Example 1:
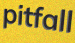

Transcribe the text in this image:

pitfall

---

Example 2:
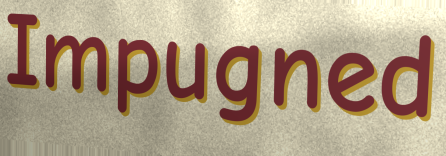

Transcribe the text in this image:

Impugned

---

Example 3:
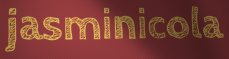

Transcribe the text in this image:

jasminicola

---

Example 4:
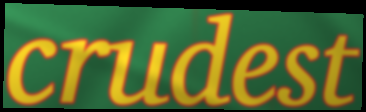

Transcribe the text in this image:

crudest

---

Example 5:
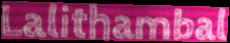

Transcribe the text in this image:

Lalithambal